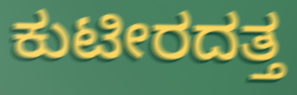
ಕುಟೀರದತ್ತ